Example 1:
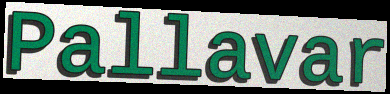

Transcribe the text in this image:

Pallavar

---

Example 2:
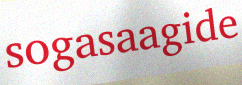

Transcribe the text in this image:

sogasaagide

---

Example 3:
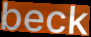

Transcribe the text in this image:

beck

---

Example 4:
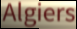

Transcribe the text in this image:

Algiers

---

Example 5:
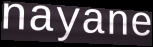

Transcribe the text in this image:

nayane